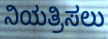
ನಿಯತ್ರಿಸಲು